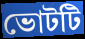
ভোটটি